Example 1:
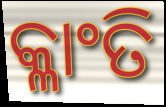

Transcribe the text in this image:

କ୍ଳାଂତି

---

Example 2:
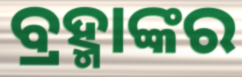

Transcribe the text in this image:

ବ୍ରହ୍ମାଙ୍କର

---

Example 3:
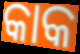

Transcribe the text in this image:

କାକ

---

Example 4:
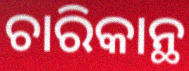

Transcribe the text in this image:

ଚାରିକାନ୍ଥ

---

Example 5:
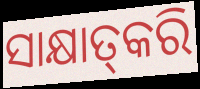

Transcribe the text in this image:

ସାକ୍ଷାତ୍‌କରି